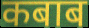
कबाब